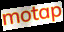
motap